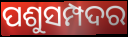
ପଶୁସମ୍ପଦର